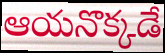
ఆయనొక్కడే